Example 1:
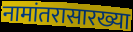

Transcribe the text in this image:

नामांतरासारख्या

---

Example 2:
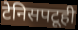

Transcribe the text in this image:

टेनिसपटूही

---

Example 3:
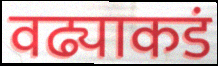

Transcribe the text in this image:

वढ्याकडं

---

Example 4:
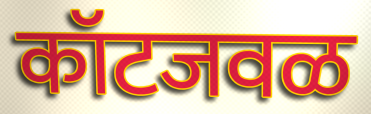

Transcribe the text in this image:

कॉटजवळ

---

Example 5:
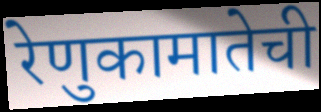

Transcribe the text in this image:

रेणुकामातेची